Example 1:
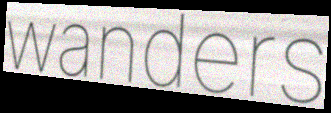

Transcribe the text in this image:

wanders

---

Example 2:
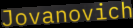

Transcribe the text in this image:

Jovanovich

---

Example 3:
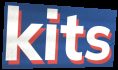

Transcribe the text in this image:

kits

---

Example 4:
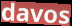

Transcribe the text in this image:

davos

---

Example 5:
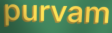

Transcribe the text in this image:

purvam